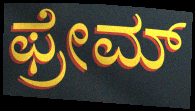
ಫ್ರೇಮ್